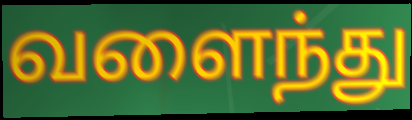
வளைந்து